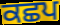
ਕਛਪ